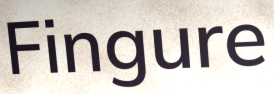
Fingure